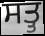
ਸਤ੍ਤ